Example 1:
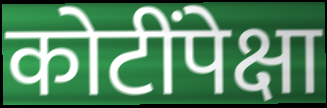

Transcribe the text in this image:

कोटींपेक्षा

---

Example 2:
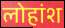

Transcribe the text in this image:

लोहांश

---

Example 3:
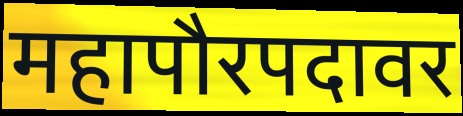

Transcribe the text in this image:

महापौरपदावर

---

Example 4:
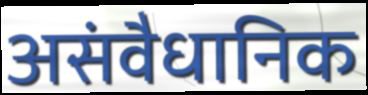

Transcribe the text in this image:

असंवैधानिक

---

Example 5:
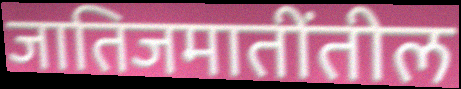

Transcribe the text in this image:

जातिजमातींतील